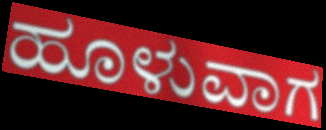
ಹೂಳುವಾಗ